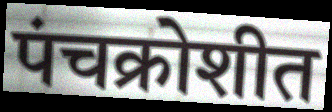
पंचक्रोशीत